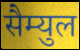
सैम्युल